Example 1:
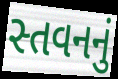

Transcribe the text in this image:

સ્તવનનું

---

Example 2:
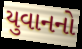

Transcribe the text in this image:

યુવાનનો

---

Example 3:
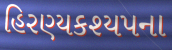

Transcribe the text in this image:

હિરણ્યકશ્યપના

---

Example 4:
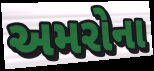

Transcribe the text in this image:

અમરોના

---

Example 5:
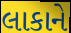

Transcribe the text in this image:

લાકાને